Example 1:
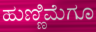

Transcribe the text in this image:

ಹುಣ್ಣಿಮೆಗೂ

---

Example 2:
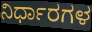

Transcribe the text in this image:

ನಿರ್ಧಾರಗಳ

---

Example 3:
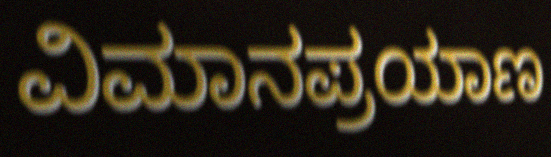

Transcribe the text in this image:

ವಿಮಾನಪ್ರಯಾಣ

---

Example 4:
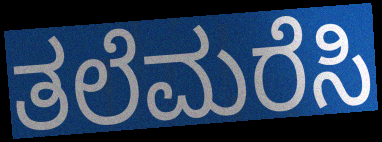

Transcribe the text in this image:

ತಲೆಮರೆಸಿ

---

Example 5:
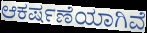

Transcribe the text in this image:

ಆಕರ್ಷಣೆಯಾಗಿವೆ